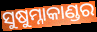
ସୁଷୁମ୍ନାକାଣ୍ଡର